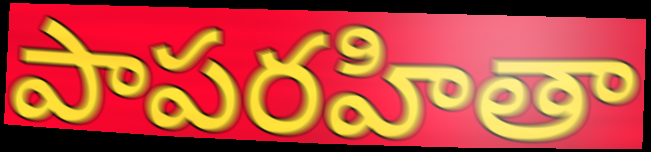
పాపరహితా